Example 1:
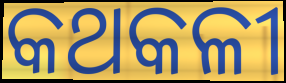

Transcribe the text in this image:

କଥକଳୀ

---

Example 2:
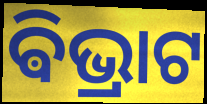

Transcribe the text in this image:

ଵିଭ୍ରାଟ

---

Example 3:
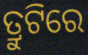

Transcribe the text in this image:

ତ୍ରୁଟିରେ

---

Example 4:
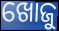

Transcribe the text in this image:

ଖୋଜୁ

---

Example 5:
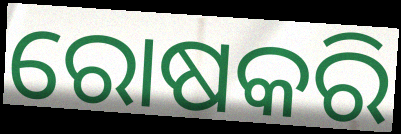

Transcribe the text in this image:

ରୋଷକରି